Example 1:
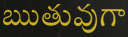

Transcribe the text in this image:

ఋతువుగా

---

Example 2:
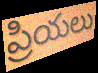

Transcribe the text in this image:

ప్రియలు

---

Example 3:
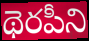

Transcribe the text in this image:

థెరపీని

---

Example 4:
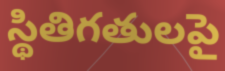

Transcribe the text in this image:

స్థితిగతులపై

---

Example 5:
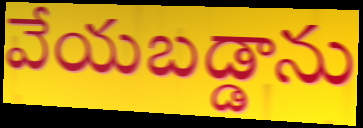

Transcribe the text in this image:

వేయబడ్డాను